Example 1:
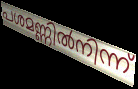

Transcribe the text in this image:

പശമണ്ണിൽനിന്ന്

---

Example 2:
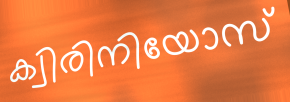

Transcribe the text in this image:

ക്വിരിനിയോസ്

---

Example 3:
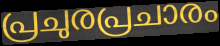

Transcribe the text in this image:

പ്രചുരപ്രചാരം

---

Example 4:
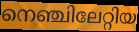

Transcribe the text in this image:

നെഞ്ചിലേറ്റിയ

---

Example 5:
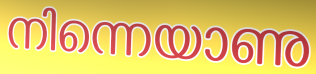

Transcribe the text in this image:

നിന്നെയാണു